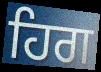
ਹਿਗ